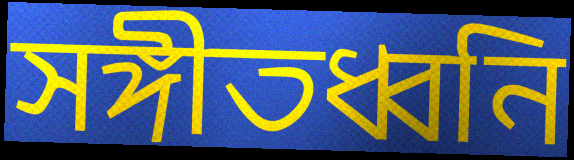
সঙ্গীতধ্বনি